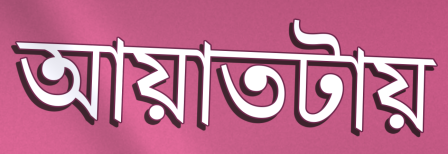
আয়াতটায়